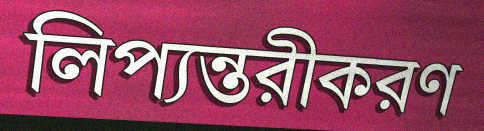
লিপ্যন্তরীকরণ